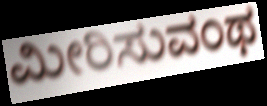
ಮೀರಿಸುವಂಥ